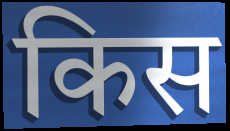
किस